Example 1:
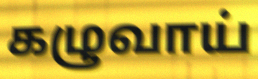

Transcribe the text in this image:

கழுவாய்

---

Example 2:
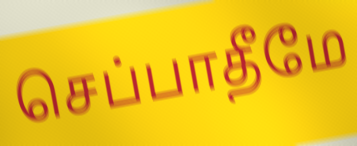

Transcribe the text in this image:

செப்பாதீமே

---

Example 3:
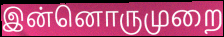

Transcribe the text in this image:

இன்னொருமுறை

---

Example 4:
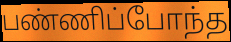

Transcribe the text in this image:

பண்ணிப்போந்த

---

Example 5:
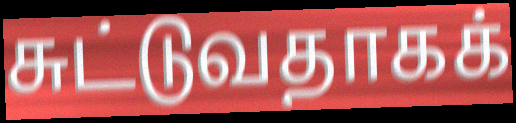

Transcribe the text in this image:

சுட்டுவதாகக்